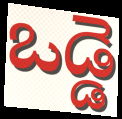
ఒడ్డె